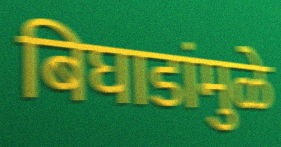
बिघाडांमुळे